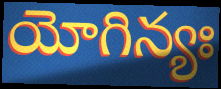
యోగిన్యః